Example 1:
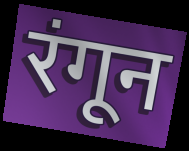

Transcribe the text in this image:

रंगून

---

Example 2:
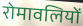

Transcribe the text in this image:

रोमावलियों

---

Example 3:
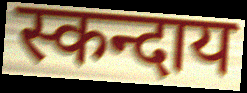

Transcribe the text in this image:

स्कन्दाय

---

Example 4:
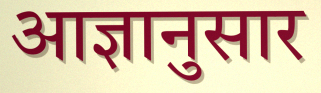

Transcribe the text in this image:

आज्ञानुसार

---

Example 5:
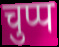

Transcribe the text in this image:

चुप्प